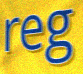
reg